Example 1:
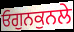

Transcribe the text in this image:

ਓਗੁਨਕੁਨਲੇ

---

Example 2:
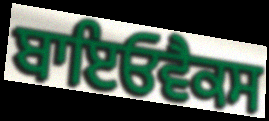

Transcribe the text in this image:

ਬਾਇਓਵੈਕਸ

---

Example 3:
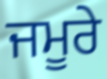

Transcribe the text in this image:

ਜਮੂਰੇ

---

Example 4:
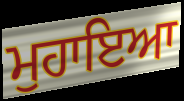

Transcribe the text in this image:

ਮੁਹਾਇਆ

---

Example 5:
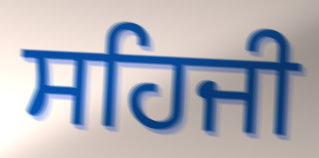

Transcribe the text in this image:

ਸਹਿਜੀ